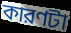
কারণটা